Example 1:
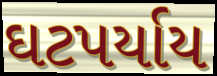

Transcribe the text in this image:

ઘટપર્યાય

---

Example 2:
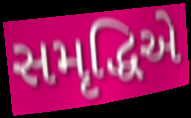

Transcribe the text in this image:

સમૃદ્ધિએ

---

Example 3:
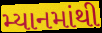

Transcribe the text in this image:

મ્યાનમાંથી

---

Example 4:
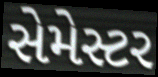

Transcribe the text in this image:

સેમેસ્ટર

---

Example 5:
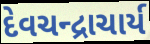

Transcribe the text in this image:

દેવચન્દ્રાચાર્ય